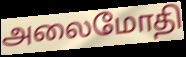
அலைமோதி